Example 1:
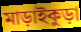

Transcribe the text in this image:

মাড়াইকুড়া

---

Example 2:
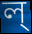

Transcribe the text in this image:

ল্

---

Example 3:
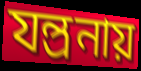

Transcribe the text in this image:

যন্ত্রনায়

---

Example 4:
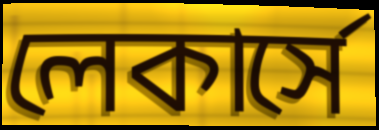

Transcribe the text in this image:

লেকার্সে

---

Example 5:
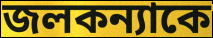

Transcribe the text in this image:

জলকন্যাকে